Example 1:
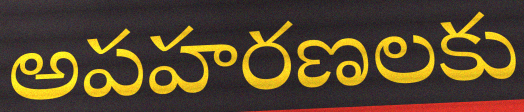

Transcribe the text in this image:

అపహరణలకు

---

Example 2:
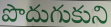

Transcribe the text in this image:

పొదుగుకుని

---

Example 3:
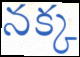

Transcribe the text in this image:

నక్క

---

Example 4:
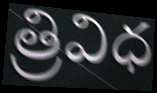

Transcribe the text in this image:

త్రివిధ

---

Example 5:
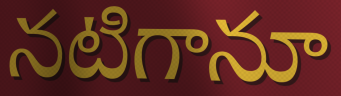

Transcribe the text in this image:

నటిగానూ